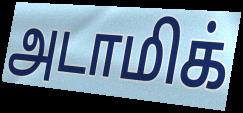
அடாமிக்